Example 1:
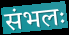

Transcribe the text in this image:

संभलः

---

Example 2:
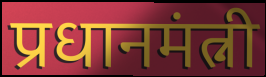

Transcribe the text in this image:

प्रधानमंत्नी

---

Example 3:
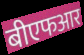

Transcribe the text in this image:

बीएफआर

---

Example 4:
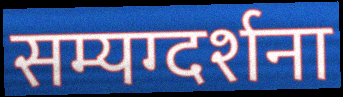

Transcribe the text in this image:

सम्यग्दर्शना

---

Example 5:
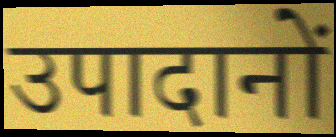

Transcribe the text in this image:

उपादानों